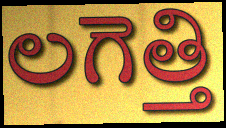
లగెత్తి